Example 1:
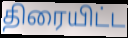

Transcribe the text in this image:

திரையிட்ட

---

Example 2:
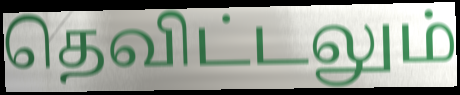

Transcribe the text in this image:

தெவிட்டலும்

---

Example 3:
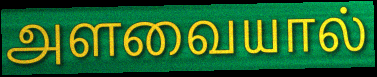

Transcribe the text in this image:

அளவையால்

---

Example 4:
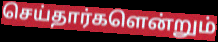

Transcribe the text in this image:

செய்தார்களென்றும்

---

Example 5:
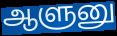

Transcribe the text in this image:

ஆளுனு